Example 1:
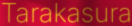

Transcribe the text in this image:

Tarakasura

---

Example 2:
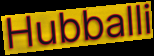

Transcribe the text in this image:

Hubballi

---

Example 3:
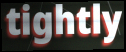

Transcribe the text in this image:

tightly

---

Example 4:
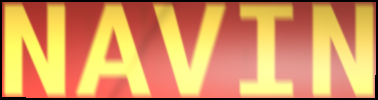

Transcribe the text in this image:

NAVIN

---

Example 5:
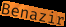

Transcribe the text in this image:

Benazir